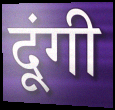
दूंगी